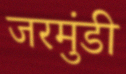
जरमुंडी